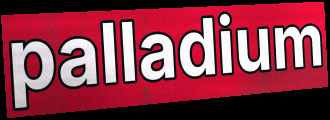
palladium